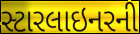
સ્ટારલાઇનરની